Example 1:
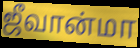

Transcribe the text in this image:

ஜீவான்மா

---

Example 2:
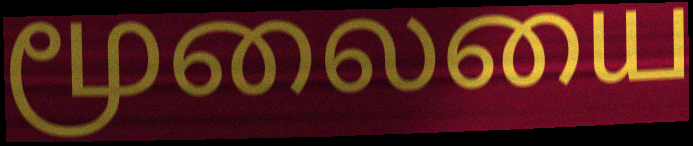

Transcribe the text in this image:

மூலையை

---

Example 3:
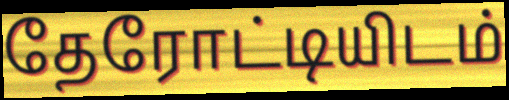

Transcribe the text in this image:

தேரோட்டியிடம்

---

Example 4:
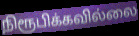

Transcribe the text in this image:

நிரூபிக்கவில்லை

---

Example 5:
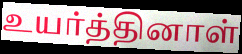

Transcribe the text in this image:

உயர்த்தினாள்